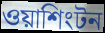
ওয়াশিংটন